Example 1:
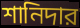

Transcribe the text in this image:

শানিদার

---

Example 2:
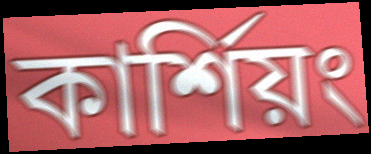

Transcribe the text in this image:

কার্শিয়ং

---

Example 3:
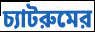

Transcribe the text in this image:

চ্যাটরুমের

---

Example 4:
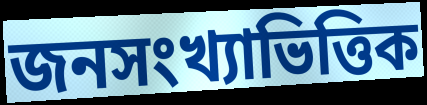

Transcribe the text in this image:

জনসংখ্যাভিত্তিক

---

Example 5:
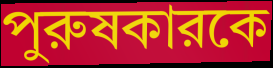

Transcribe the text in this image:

পুরুষকারকে